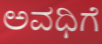
ಅವಧಿಗೆ